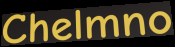
Chelmno